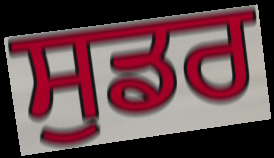
ਸੁਡਰ